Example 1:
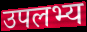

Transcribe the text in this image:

उपलभ्य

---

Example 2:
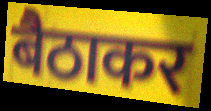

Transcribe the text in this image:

बैठाकर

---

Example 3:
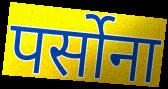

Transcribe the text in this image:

पर्सोना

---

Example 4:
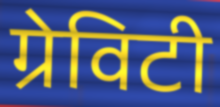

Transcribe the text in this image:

ग्रेविटी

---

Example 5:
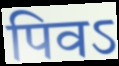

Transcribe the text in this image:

पिवऽ